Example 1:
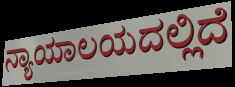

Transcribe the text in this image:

ನ್ಯಾಯಾಲಯದಲ್ಲಿದೆ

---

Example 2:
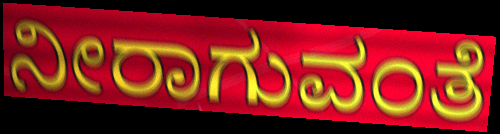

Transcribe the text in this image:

ನೀರಾಗುವಂತೆ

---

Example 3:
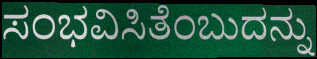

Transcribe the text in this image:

ಸಂಭವಿಸಿತೆಂಬುದನ್ನು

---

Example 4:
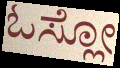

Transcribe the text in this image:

ಓಸ್ಲೋ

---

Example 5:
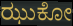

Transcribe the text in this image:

ಝುಕೋ